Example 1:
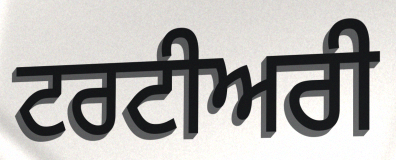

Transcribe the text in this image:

ਟਰਟੀਅਰੀ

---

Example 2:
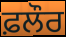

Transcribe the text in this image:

ਫ਼ਲੌਰ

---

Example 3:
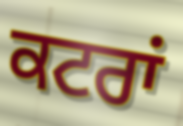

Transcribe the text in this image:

ਕਟਰਾਂ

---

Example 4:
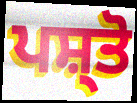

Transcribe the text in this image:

ਪਸ਼੍ਤੋ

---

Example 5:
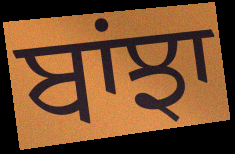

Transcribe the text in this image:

ਬਾਂਝਾ